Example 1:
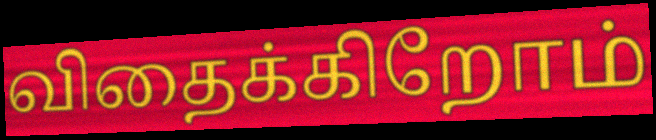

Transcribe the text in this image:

விதைக்கிறோம்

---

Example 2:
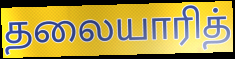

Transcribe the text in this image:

தலையாரித்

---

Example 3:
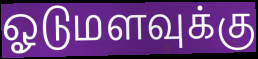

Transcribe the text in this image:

ஓடுமளவுக்கு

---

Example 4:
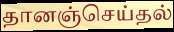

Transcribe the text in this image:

தானஞ்செய்தல்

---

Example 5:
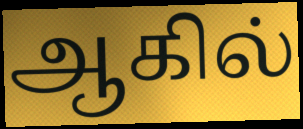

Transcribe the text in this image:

ஆகில்